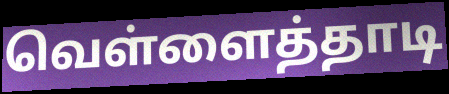
வெள்ளைத்தாடி